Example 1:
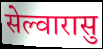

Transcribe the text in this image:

सेल्वारासु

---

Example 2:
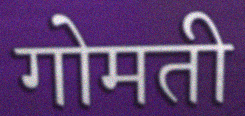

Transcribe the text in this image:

गोमती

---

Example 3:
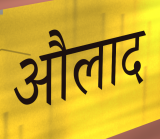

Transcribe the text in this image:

औलाद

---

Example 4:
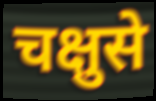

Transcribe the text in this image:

चक्षुसे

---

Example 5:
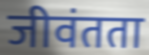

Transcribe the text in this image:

जीवंतता